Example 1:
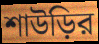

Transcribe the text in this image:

শাউড়ির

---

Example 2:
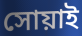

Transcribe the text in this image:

সোয়াই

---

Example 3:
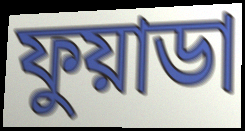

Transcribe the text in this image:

ফুয়াডা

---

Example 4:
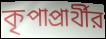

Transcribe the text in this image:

কৃপাপ্রার্থীর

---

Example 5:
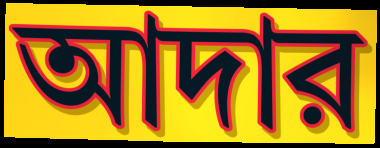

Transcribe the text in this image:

আদার